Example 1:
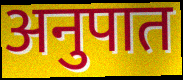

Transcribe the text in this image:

अनुपात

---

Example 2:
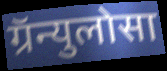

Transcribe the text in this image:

ग्रॅन्युलोसा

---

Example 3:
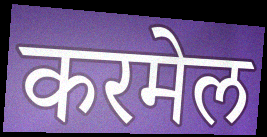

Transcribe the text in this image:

करमेल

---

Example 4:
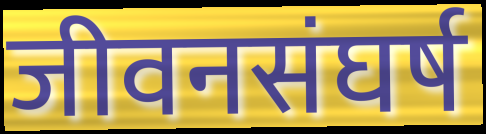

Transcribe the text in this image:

जीवनसंघर्ष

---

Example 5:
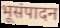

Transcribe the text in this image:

भूसंपादन